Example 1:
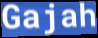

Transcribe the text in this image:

Gajah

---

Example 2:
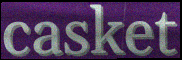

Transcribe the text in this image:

casket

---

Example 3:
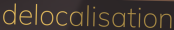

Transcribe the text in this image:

delocalisation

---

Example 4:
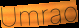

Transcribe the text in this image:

Umrao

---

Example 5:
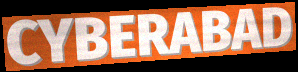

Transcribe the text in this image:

CYBERABAD